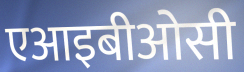
एआइबीओसी